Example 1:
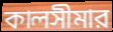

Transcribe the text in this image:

কালসীমার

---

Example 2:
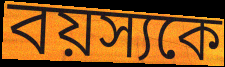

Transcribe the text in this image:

বয়স্যকে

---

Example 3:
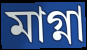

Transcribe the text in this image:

মাগ্না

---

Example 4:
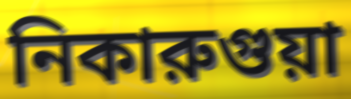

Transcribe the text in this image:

নিকারুগুয়া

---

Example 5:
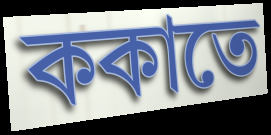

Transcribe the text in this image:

ককাতে